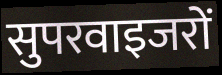
सुपरवाइजरों